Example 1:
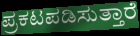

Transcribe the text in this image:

ಪ್ರಕಟಪಡಿಸುತ್ತಾರೆ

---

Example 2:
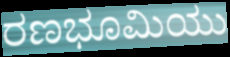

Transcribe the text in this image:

ರಣಭೂಮಿಯು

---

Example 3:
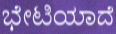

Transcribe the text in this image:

ಭೇಟಿಯಾದೆ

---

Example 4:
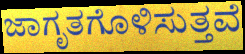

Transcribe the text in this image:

ಜಾಗೃತಗೊಳಿಸುತ್ತವೆ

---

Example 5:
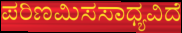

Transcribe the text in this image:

ಪರಿಣಮಿಸಸಾಧ್ಯವಿದೆ